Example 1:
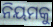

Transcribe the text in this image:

ନିୟମକୁ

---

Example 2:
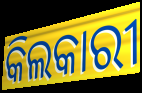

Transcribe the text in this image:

କିଲକାରୀ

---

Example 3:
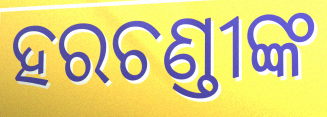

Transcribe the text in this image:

ହରଚଣ୍ଡୀଙ୍କ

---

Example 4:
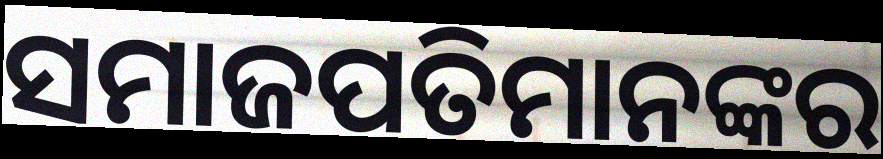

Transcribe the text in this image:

ସମାଜପତିମାନଙ୍କର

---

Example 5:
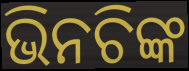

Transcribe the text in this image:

ଭିନଚିଙ୍କ